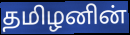
தமிழனின்